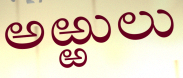
అఱ్ఱులు